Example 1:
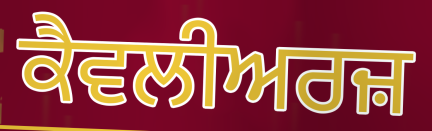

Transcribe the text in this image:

ਕੈਵਲੀਅਰਜ਼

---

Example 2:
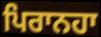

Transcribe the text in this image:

ਪਿਰਾਨਹਾ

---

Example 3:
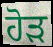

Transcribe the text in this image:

ਹੋੜ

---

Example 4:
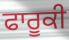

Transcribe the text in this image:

ਫਾਰੂਕੀ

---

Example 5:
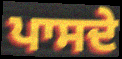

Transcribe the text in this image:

ਪਾਸਦੇ